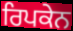
ਰਿਪਕੇਨ